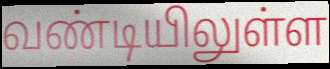
வண்டியிலுள்ள